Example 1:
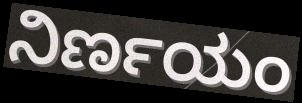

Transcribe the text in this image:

ನಿರ್ಣಯಂ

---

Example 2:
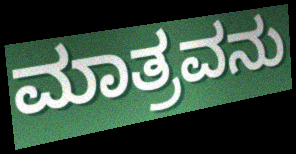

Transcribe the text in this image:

ಮಾತ್ರವನು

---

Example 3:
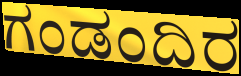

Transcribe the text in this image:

ಗಂಡಂದಿರ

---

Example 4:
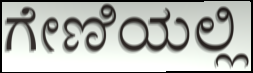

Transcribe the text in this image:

ಗೇಣಿಯಲ್ಲಿ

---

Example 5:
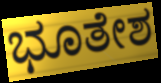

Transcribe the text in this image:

ಭೂತೇಶ